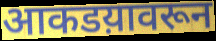
आकडय़ावरून